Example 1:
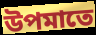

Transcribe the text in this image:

উপমাতে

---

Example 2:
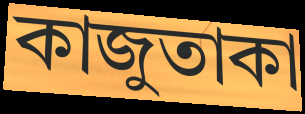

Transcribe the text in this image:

কাজুতাকা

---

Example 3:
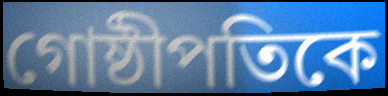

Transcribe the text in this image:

গোষ্ঠীপতিকে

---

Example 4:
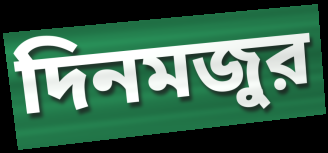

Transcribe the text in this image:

দিনমজুর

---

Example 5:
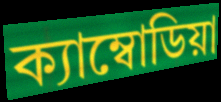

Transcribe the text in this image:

ক্যাম্বোডিয়া